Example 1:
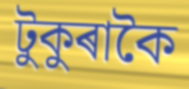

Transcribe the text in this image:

টুকুৰাকৈ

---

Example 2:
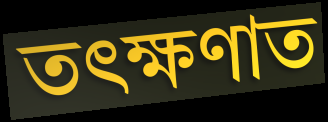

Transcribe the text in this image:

তৎক্ষণাত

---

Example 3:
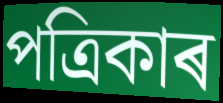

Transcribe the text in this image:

পত্ৰিকাৰ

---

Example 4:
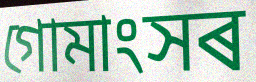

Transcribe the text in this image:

গোমাংসৰ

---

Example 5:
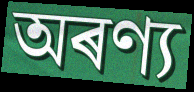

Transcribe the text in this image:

অৰণ্য